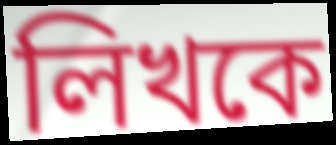
লিখকে